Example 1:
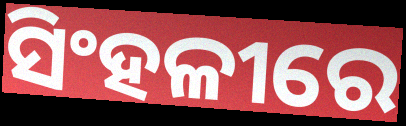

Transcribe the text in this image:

ସିଂହଳୀରେ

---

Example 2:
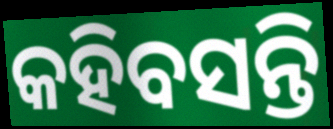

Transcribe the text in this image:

କହିବସନ୍ତି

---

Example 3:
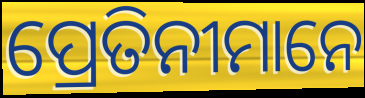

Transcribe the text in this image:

ପ୍ରେତିନୀମାନେ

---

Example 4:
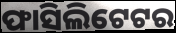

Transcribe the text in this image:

ଫାସିଲିଟେଟର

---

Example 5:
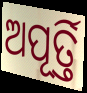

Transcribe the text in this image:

ଅପୂର୍ତ୍ତି